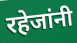
रहेजांनी